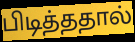
பிடித்ததால்